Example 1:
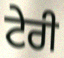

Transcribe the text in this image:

ਟੇਰੀ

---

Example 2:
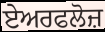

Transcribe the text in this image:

ਏਅਰਫਲੋਜ਼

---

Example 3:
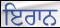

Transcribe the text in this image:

ਇਰਾਨ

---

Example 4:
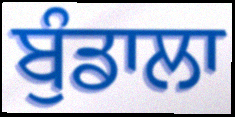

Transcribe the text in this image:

ਬੁੰਡਾਲਾ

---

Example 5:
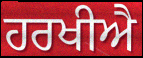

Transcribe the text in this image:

ਹਰਖੀਐ